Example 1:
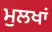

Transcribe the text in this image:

ਮੁਲਖਾਂ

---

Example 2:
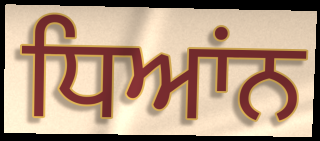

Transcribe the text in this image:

ਧਿਆਂਨ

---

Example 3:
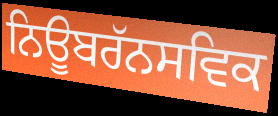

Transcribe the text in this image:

ਨਿਊਬਰੱਨਸਵਿਕ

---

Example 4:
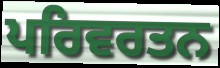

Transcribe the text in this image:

ਪਰਿਵਰਤਨ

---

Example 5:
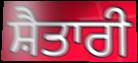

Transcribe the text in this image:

ਸ਼ੈਤਾਰੀ